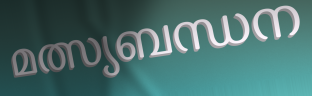
മത്സ്യബന്ധന